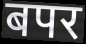
बपर